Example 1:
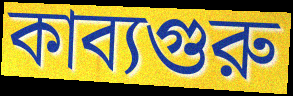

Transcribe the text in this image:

কাব্যগুরু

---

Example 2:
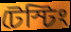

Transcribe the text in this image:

টেস্টিং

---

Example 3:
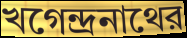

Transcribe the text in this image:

খগেন্দ্রনাথের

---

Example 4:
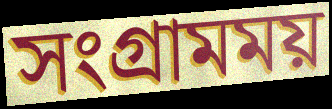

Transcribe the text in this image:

সংগ্রামময়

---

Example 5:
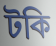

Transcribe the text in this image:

টকি